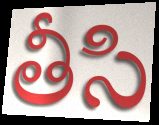
తీసి